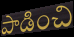
పాడించి